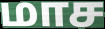
மாச